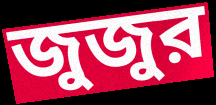
জুজুর